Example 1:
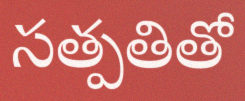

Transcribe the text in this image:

సత్పతితో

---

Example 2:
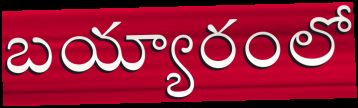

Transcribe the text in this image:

బయ్యారంలో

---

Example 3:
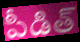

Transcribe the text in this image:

పీడిత్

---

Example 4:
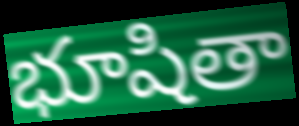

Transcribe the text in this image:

భూషితా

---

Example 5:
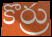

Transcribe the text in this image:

కొర్రు